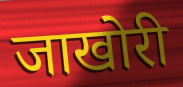
जाखोरी